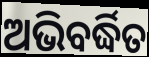
ଅଭିବର୍ଦ୍ଧିତ